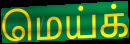
மெய்க்